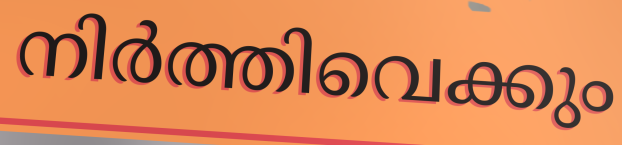
നിർത്തിവെക്കും